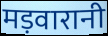
मड़वारानी